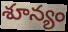
శూన్యం